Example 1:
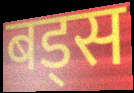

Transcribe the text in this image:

बड्स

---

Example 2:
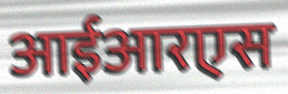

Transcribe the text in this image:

आईआरएस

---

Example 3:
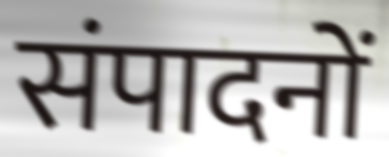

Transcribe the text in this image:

संपादनों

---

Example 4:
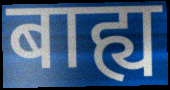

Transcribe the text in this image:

बाह्य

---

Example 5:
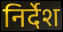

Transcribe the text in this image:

निर्देश